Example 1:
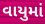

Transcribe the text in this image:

વાયુમાં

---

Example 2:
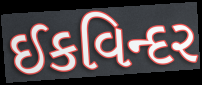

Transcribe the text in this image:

ઈકવિન્દર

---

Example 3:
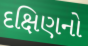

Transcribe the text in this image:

દક્ષિણનો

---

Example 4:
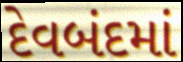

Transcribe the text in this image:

દેવબંદમાં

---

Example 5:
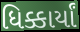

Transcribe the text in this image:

ધિક્કાર્યાં